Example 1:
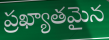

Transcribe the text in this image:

ప్రఖ్యాతమైన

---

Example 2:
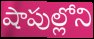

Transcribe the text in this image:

షాపుల్లోని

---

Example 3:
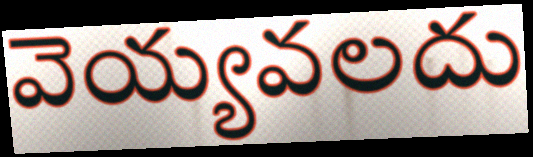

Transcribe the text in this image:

వెయ్యవలదు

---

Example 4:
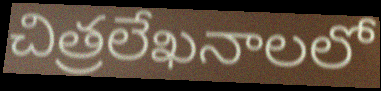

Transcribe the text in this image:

చిత్రలేఖనాలలో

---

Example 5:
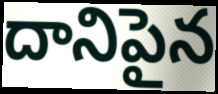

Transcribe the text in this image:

దానిపైన